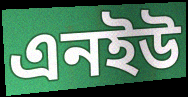
এনইউ